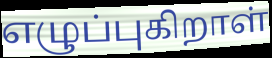
எழுப்புகிறாள்